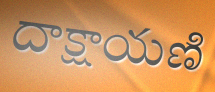
దాక్షాయణి